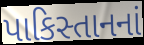
પાકિસ્તાનનાં